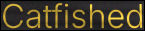
Catfished